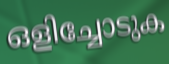
ഒളിച്ചോടുക